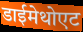
डाईमेथोएट